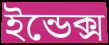
ইন্ডেক্স